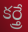
కర్త్రే